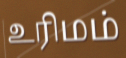
உரிமம்